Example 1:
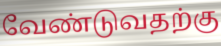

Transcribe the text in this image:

வேண்டுவதற்கு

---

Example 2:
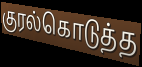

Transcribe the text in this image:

குரல்கொடுத்த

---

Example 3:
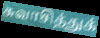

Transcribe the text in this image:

சுவாசித்துக்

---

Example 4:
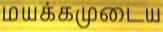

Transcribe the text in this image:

மயக்கமுடைய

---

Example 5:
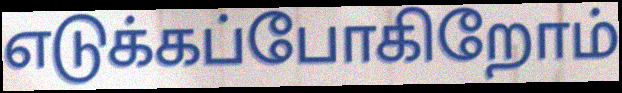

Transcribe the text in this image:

எடுக்கப்போகிறோம்